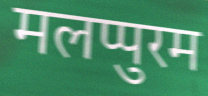
मलप्पुरम